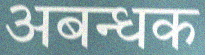
अबन्धक